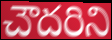
చౌదరిని